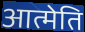
आत्मेति